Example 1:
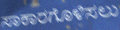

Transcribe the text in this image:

ಸಾಕಾರಗೊಳಿಸಲು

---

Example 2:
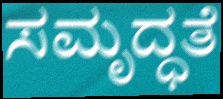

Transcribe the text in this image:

ಸಮೃದ್ಧತೆ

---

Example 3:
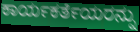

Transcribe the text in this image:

ಕಾರ್ಯಕರ್ತೆಯರನ್ನು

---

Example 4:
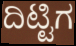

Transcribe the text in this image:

ದಿಟ್ಟಿಗ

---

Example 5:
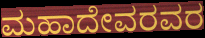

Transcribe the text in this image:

ಮಹಾದೇವರವರ